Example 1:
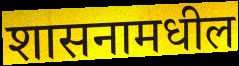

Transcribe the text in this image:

शासनामधील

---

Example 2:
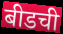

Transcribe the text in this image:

बीडची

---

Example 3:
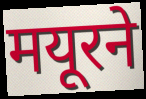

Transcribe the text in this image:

मयूरने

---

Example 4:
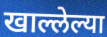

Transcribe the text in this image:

खाल्लेल्या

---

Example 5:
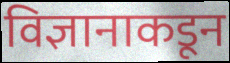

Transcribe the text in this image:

विज्ञानाकडून